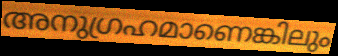
അനുഗ്രഹമാണെങ്കിലും